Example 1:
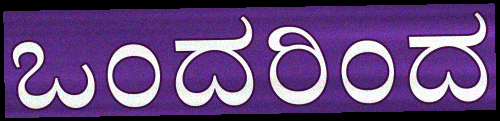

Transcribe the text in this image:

ಒಂದರಿಂದ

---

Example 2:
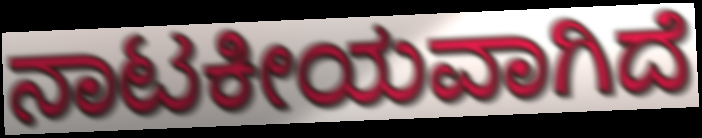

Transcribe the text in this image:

ನಾಟಕೀಯವಾಗಿದೆ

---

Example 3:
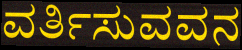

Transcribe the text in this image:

ವರ್ತಿಸುವವನ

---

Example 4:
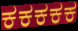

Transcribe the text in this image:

ಕಕಕಕಕ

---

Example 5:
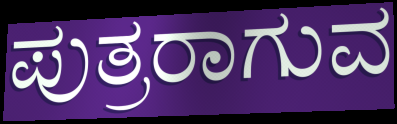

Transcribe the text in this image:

ಪುತ್ರರಾಗುವ